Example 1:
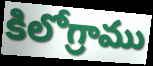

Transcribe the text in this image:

కిలోగ్రాము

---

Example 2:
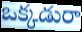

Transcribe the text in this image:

ఒక్కడురా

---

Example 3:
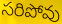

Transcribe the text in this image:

సరిపోవు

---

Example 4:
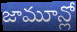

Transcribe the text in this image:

జామూన్లో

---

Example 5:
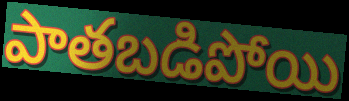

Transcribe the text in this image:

పాతబడిపోయి